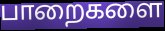
பாறைகளை